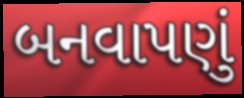
બનવાપણું